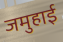
जमुहाई